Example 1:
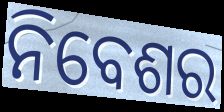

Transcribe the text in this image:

ନିବେଶର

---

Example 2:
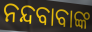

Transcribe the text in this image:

ନନ୍ଦବାବାଙ୍କ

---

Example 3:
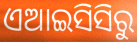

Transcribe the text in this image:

ଏଆଇସିସିରୁ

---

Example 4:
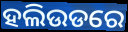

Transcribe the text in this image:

ହଲିଉଡରେ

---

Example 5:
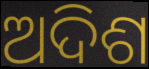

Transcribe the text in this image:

ଅଦିଶ